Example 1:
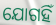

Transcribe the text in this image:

ଯୋଗହିଁ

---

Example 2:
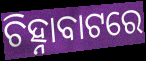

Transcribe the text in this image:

ଚିହ୍ନାବାଟରେ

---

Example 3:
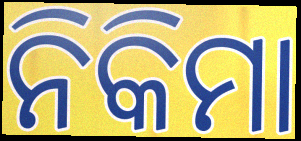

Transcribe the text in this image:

ନିକିମା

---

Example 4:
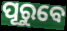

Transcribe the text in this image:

ପୂରୁବେ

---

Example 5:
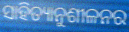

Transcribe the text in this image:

ସାହିତ୍ୟାନୁଶୀଳନର